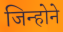
जिन्होने